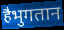
हैभुगतान